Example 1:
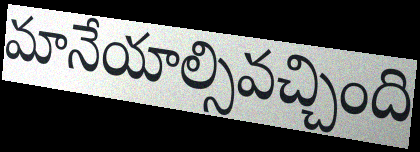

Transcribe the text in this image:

మానేయాల్సివచ్చింది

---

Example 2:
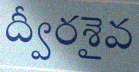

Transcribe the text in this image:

ద్వీరశైవ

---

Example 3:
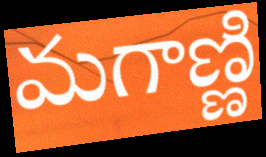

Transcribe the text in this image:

మగాణ్ణి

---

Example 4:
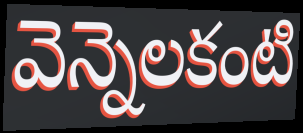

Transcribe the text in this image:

వెన్నెలకంటి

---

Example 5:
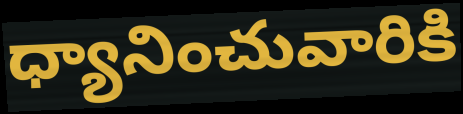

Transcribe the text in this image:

ధ్యానించువారికి